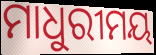
ମାଧୁରୀମୟ